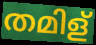
തമിള്